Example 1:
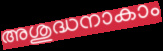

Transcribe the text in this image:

അശുദ്ധനാകാം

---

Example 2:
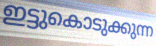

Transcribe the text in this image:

ഇട്ടുകൊടുക്കുന്ന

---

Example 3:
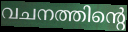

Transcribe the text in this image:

വചനത്തിന്റെ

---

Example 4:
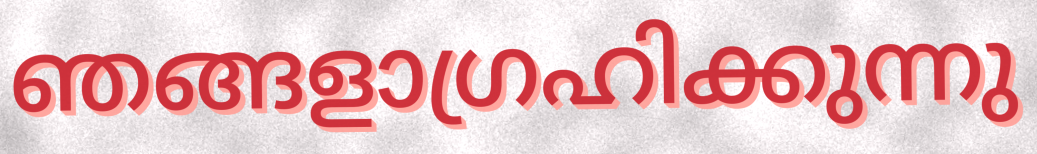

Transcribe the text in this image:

ഞങ്ങളാഗ്രഹിക്കുന്നു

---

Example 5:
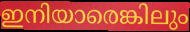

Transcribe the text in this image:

ഇനിയാരെങ്കിലും